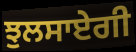
ਝੁਲਸਾਏਗੀ